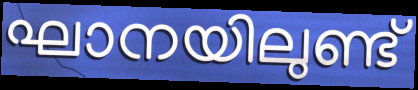
ഘാനയിലുണ്ട്